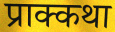
प्राक्कथा